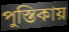
পুস্তিকায়